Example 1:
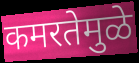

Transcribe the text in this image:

कमरतेमुळे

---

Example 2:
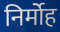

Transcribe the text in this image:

निर्मोह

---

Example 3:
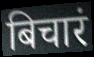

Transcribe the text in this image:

बिचारं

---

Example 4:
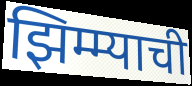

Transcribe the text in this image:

झिम्म्याची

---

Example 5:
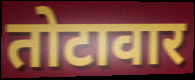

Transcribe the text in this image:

तोटावार